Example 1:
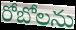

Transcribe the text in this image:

రోబోలను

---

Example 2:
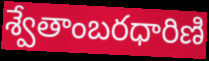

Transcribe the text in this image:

శ్వేతాంబరధారిణి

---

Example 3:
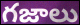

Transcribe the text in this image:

గజాలు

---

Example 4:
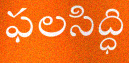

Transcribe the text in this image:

ఫలసిద్ధి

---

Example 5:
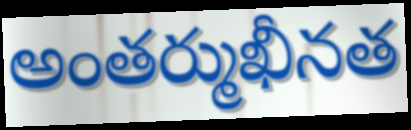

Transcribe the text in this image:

అంతర్ముఖీనత